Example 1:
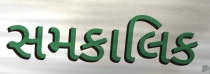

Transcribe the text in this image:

સમકાલિક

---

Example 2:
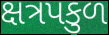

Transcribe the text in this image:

ક્ષત્રપકુળ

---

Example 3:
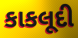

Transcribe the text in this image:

કાકલૂદી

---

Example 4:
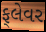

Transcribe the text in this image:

ફ્‌લેવર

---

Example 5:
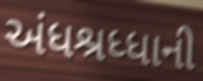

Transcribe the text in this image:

અંધશ્રધ્ધાની